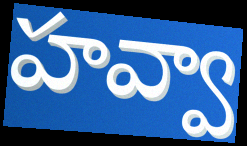
హవ్వా